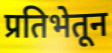
प्रतिभेतून